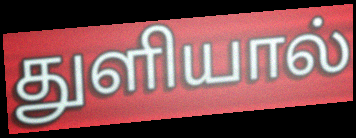
துளியால்